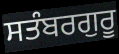
ਸਤੰਬਰਗੁਰੂ